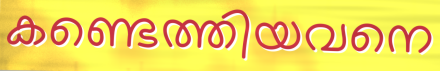
കണ്ടെത്തിയവനെ